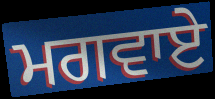
ਮਗਵਾਏ